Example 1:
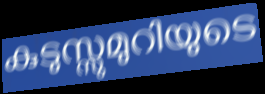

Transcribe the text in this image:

കുടുസ്സുമുറിയുടെ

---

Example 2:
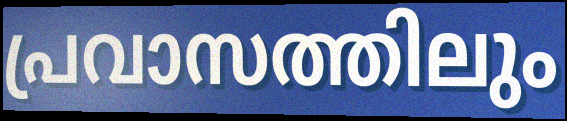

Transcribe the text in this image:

പ്രവാസത്തിലും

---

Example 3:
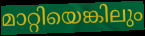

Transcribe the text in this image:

മാറ്റിയെങ്കിലും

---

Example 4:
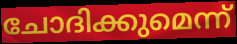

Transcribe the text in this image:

ചോദിക്കുമെന്ന്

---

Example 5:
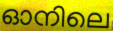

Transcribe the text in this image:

ഓനിലെ